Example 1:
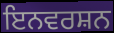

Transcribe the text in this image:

ਇਨਵਰਸ਼ਨ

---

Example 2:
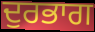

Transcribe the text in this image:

ਦੁਰਭਾਗ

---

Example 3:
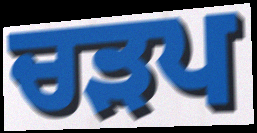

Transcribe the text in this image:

ਚੜਪ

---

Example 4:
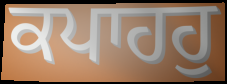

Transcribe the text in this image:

ਕਪਾਹਹੁ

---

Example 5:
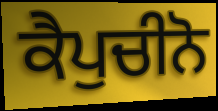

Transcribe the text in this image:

ਕੈਪੁਚੀਨੋ